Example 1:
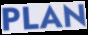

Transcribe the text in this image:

PLAN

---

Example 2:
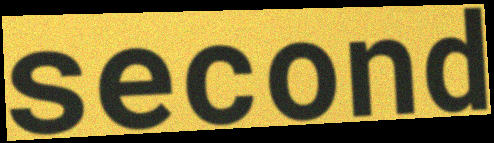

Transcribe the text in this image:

second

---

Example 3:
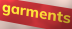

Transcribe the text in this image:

garments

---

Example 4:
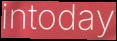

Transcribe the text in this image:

intoday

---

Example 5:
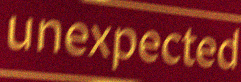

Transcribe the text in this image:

unexpected